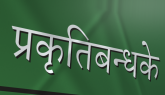
प्रकृतिबन्धके